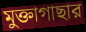
মুক্তাগাছার